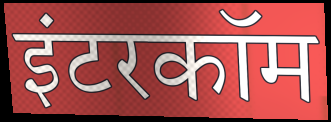
इंटरकॉम